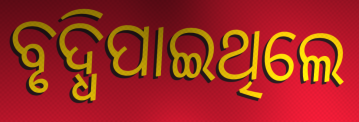
ବୃଦ୍ଧିପାଇଥିଲେ